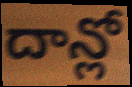
దాన్లో